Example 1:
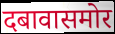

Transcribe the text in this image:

दबावासमोर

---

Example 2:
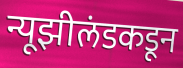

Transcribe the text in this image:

न्यूझीलंडकडून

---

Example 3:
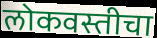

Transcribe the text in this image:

लोकवस्तीचा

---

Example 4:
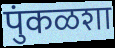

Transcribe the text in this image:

पुंकळशा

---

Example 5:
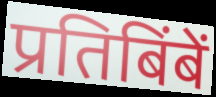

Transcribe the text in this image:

प्रतिबिंबें